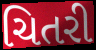
ચિતરી